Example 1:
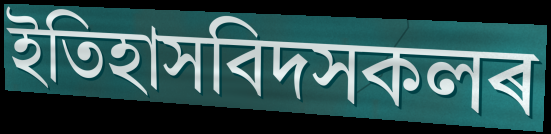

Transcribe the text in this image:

ইতিহাসবিদসকলৰ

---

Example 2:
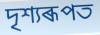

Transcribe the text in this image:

দৃশ্যৰূপত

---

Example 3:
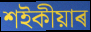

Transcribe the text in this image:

শইকীয়াৰ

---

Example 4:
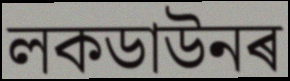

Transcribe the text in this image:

লকডাউনৰ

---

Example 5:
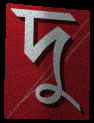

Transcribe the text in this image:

দু